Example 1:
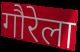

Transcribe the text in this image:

गौरेला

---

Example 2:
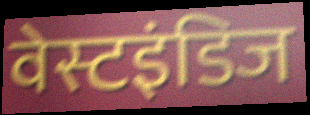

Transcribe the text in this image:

वेस्टइंडिज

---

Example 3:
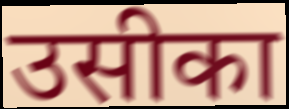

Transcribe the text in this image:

उसीका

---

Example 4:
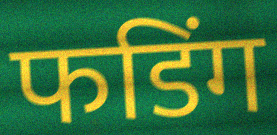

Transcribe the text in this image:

फडिंग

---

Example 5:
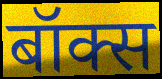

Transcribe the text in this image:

बॉक्स